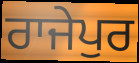
ਰਾਜੇਪੁਰ